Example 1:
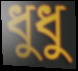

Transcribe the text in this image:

ধুধু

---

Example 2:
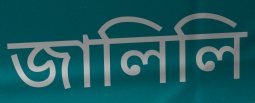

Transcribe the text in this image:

জালিলি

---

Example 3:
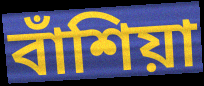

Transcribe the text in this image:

বাঁশিয়া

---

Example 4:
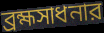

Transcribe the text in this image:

ব্রহ্মসাধনার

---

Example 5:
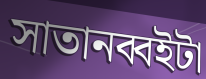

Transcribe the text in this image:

সাতানব্বইটা